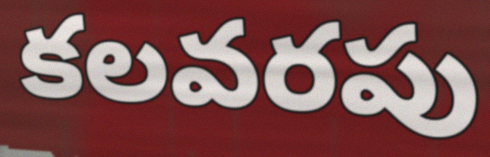
కలవరపు